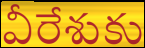
వీరేశుకు